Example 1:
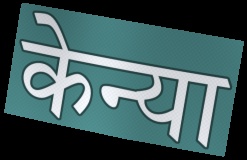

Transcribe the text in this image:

केन्या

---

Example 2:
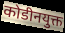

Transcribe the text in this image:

कोडीनयुक्त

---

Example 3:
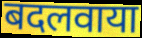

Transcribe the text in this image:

बदलवाया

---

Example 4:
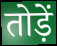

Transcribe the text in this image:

तोड़ें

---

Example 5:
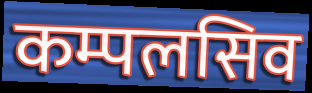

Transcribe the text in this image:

कम्पलसिव